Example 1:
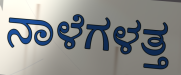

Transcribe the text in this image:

ನಾಳೆಗಳತ್ತ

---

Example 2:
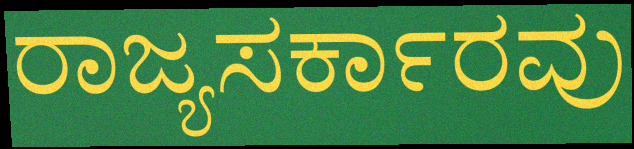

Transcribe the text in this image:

ರಾಜ್ಯಸರ್ಕಾರವು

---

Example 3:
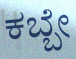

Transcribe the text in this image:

ಕಬ್ಬೇ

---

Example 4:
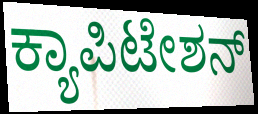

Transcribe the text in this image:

ಕ್ಯಾಪಿಟೇಶನ್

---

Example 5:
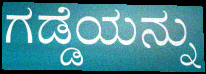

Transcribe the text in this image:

ಗಡ್ಡೆಯನ್ನು